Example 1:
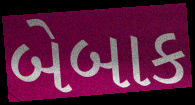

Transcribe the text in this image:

બેબાક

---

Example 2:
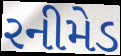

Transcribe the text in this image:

રનીમેડ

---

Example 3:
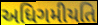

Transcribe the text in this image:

અધિગમીયતિ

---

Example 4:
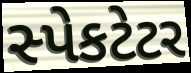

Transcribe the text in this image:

સ્પેકટેટર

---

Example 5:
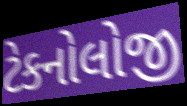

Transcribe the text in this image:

ટેકનોલોજી